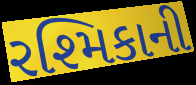
રશ્મિકાની